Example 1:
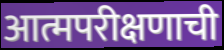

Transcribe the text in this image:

आत्मपरीक्षणाची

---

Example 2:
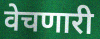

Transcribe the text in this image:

वेचणारी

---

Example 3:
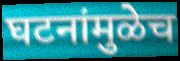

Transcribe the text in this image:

घटनांमुळेच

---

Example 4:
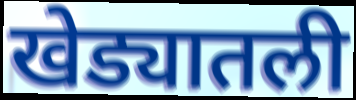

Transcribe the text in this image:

खेड्यातली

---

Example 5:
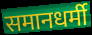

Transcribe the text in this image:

समानधर्मी